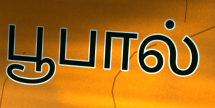
பூபால்